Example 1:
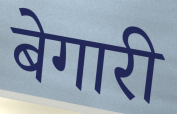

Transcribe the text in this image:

बेगारी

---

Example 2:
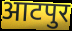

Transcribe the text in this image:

आटपुर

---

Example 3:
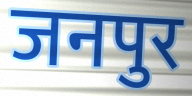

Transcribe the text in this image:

जनपुर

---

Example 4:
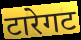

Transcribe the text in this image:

टारेगट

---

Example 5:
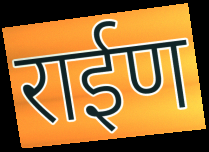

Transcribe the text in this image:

राईण